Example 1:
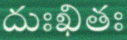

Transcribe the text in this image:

దుఃఖితః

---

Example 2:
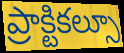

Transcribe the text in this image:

ప్రాక్టికల్సూ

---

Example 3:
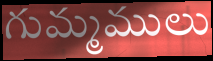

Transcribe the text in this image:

గుమ్మములు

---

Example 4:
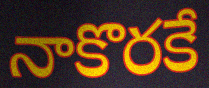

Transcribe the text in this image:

నాకొరకే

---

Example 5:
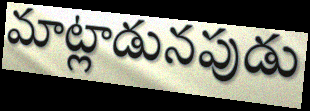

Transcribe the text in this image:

మాట్లాడునపుడు